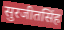
सुरजीतसिंह